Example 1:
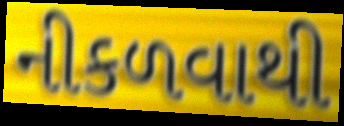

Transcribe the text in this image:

નીકળવાથી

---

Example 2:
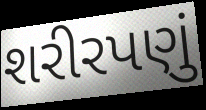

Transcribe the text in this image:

શરીરપણું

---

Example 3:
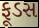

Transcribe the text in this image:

ફૂડસ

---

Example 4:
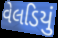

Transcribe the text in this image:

વેલડિયું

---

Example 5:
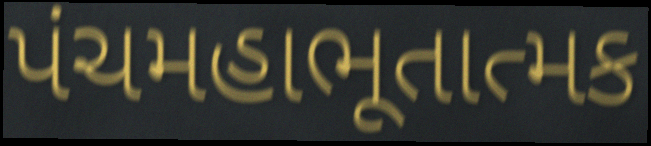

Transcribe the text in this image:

પંચમહાભૂતાત્મક